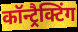
कॉन्ट्रैक्टिंग